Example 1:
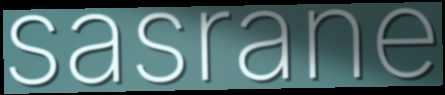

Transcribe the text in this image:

sasrane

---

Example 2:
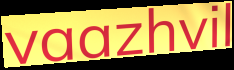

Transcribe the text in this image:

vaazhvil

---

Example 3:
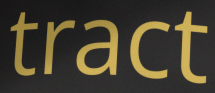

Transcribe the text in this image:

tract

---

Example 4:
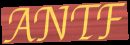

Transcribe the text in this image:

ANTF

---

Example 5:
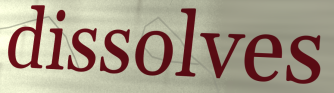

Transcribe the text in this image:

dissolves